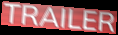
TRAILER